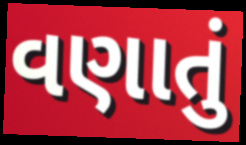
વણાતું